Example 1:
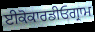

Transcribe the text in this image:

ਈਕੋਕਾਰਡੀਓਗ੍ਰਾਮ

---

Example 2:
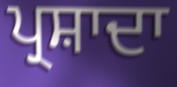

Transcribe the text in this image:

ਪ੍ਰਸ਼ਾਦਾ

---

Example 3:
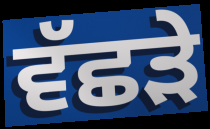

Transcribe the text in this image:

ਵੱਛੜੇ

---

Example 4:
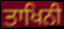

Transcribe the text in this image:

ਤਾਖਿਨੀ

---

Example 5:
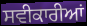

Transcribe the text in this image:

ਸਵੀਕਾਰੀਆਂ